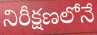
నిరీక్షణలోనే